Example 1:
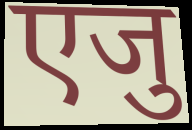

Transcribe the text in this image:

एजु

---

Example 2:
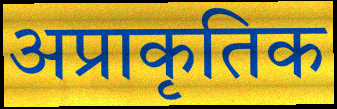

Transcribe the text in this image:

अप्राकृतिक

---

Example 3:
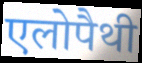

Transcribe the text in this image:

एलोपैथी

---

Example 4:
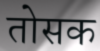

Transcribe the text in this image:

तोसक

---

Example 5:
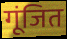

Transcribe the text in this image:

गूंजित